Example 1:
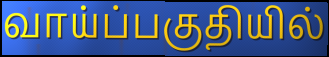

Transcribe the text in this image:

வாய்ப்பகுதியில்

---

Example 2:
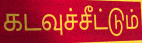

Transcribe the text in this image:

கடவுச்சீட்டும்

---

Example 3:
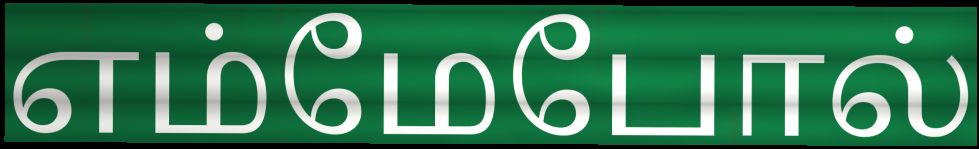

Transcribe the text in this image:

எம்மேபோல்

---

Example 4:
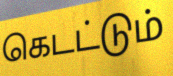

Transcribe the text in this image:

கெடட்டும்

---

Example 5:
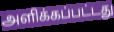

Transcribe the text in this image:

அளிக்கப்பட்டது